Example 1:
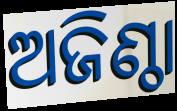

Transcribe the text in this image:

ଅଜିଣ୍ଠା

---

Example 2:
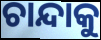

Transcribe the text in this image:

ଚାନ୍ଦାକୁ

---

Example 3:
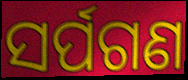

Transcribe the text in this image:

ସର୍ପଗଣ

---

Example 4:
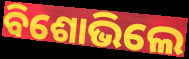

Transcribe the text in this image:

ବିଶୋଭିଲେ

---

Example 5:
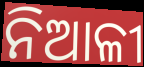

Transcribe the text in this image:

ନିଆଳୀ